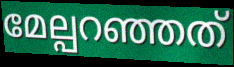
മേല്പറഞ്ഞത്